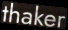
thaker